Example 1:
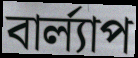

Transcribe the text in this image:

বার্ল্যাপ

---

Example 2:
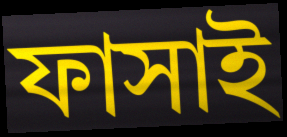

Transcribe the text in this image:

ফাসাই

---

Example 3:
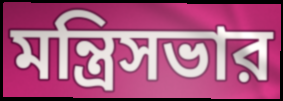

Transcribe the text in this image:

মন্ত্রিসভার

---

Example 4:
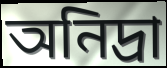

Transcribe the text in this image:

অনিদ্রা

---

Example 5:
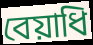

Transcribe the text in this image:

বেয়াধি